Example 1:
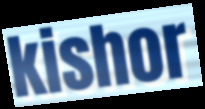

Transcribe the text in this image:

kishor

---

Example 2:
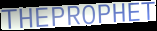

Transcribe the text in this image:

THEPROPHET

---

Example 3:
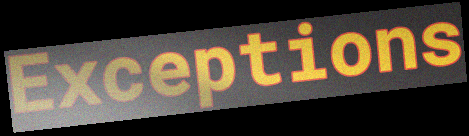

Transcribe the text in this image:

Exceptions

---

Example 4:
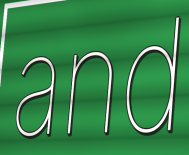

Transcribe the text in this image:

and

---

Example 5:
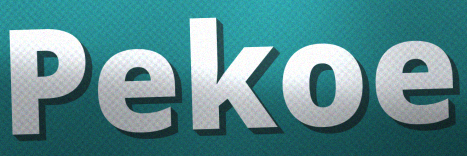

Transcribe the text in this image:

Pekoe